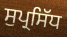
ਸੁਪ੍ਰਸਿੱਧ